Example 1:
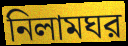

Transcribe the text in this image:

নিলামঘর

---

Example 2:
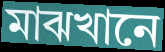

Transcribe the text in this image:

মাঝখানে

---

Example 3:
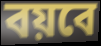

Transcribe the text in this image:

বয়বে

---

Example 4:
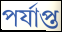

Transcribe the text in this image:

পর্যাপ্ত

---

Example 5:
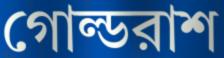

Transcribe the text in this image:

গোল্ডরাশ